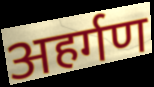
अहर्गण